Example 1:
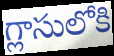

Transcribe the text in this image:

గ్లాసులోకి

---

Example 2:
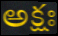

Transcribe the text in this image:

అక్షః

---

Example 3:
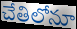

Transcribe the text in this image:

చేతిలోనూ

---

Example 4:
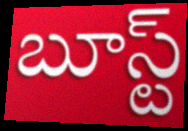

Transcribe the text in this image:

బూస్ట్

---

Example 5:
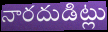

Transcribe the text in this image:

నారదుడిట్లు